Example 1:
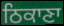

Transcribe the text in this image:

ਠਿਕਾਣਾ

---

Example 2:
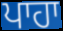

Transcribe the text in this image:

ਪਾਹਾ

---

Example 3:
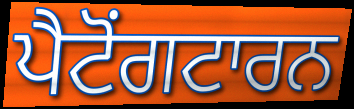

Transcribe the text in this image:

ਪੈਟੋਂਗਟਾਰਨ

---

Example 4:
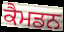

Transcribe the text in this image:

ਕੈਮਡਨ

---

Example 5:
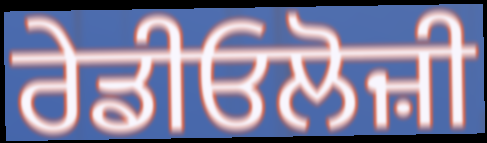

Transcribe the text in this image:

ਰੇਡੀਓਲੋਜ਼ੀ